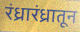
रंध्रारंध्रातून